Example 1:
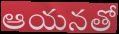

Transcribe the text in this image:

ఆయనతో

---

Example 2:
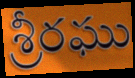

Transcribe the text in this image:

శ్రీరఘు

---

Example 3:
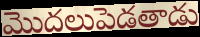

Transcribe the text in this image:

మొదలుపెడతాడు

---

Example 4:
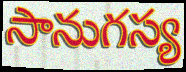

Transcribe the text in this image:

సానుగస్య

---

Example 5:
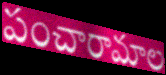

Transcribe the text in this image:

పంచారామాల